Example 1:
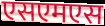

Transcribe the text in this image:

एसएमएस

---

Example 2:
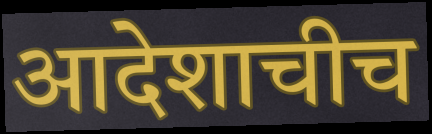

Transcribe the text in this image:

आदेशाचीच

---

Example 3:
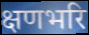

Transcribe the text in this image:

क्षणभरि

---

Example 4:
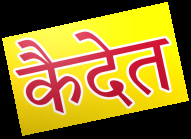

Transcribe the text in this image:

कैदेत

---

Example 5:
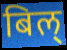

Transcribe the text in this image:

बिल्